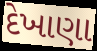
દેખાણા